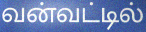
வன்வட்டில்